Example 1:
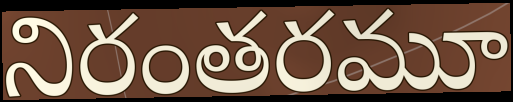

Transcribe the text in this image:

నిరంతరమూ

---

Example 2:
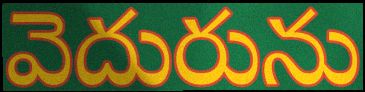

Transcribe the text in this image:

వెదురును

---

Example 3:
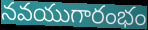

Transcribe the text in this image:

నవయుగారంభం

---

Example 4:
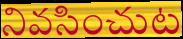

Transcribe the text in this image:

నివసించుట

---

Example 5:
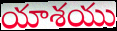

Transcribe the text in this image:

యాశయు